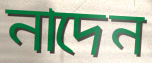
নাদেন